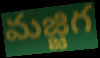
మజ్జిగ